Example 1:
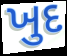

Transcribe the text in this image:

ખુદ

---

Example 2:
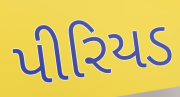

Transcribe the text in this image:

પીરિયડ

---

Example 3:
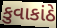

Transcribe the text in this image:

કુવાકાંઠે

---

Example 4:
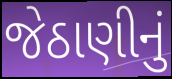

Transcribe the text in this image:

જેઠાણીનું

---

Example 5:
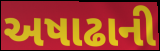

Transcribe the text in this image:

અષાઢાની